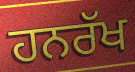
ਹਨਰੱਖ